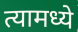
त्यामध्ये